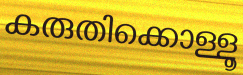
കരുതിക്കൊള്ളൂ